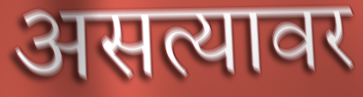
असत्यावर